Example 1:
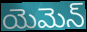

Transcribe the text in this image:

యెమెన్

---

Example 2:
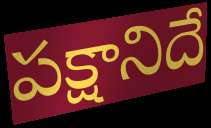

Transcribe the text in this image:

పక్షానిదే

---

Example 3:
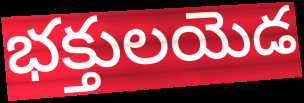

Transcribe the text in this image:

భక్తులయెడ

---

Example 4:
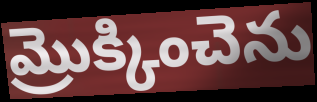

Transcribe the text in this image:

మ్రొక్కించెను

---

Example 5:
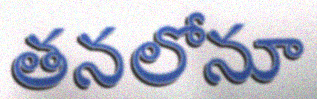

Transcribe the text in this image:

తనలోనూ